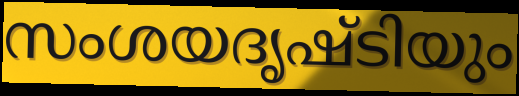
സംശയദൃഷ്ടിയും